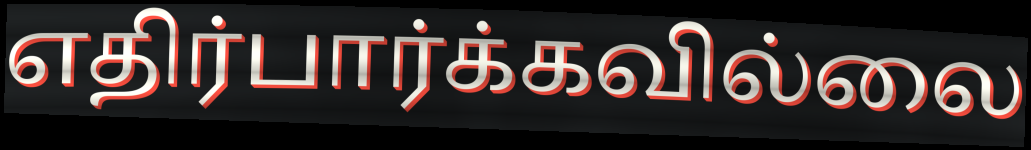
எதிர்பார்க்கவில்லை